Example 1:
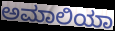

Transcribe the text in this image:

ಅಮಾಲಿಯಾ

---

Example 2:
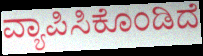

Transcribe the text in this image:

ವ್ಯಾಪಿಸಿಕೊಂಡಿದೆ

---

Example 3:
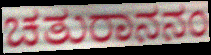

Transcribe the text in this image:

ಚತುರಾನನಂ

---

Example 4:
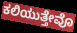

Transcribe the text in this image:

ಕಲಿಯುತ್ತೇವೊ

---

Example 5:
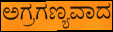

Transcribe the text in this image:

ಅಗ್ರಗಣ್ಯವಾದ